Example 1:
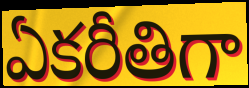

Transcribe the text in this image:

ఏకరీతిగా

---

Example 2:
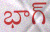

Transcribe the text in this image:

భాగ్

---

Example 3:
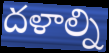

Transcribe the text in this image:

దళాల్ని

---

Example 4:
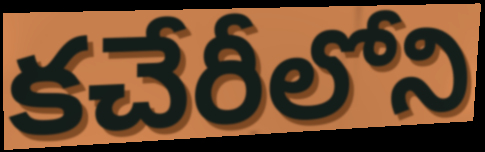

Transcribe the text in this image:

కచేరీలోని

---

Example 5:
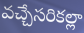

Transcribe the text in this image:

వచ్చేసరికల్లా